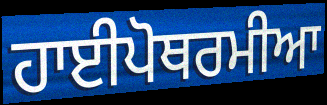
ਹਾਈਪੋਥਰਮੀਆ